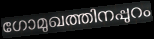
ഗോമുഖത്തിനപ്പുറം